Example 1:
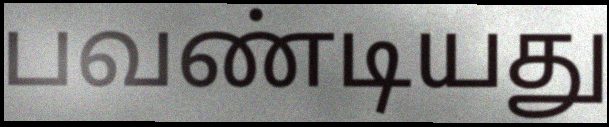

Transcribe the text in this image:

பவண்டியது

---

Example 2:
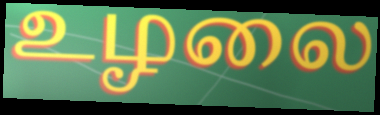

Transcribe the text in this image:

உழலை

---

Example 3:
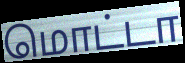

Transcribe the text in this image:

மொட்டா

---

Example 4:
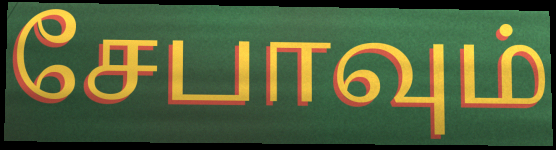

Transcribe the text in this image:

சேபாவும்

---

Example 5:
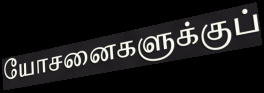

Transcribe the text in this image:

யோசனைகளுக்குப்